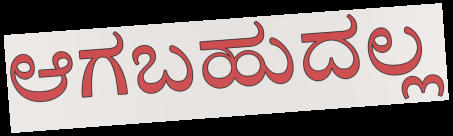
ಆಗಬಹುದಲ್ಲ